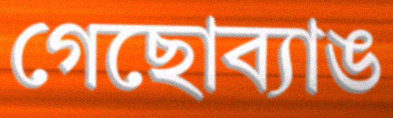
গেছোব্যাঙ